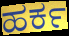
ಹರ್ಕ